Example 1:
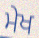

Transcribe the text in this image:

ਮੇਖ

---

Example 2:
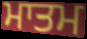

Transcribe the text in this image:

ਮਾਤਮ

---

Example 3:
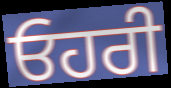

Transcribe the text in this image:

ਓਹਰੀ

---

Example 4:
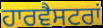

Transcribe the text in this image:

ਹਾਰਵੈਸਟਰਾਂ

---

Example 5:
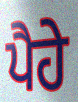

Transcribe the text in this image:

ਪੈਹੇ